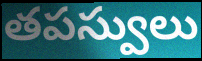
తపస్వులు